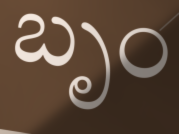
బృం